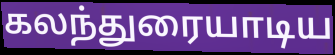
கலந்துரையாடிய